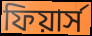
ফিয়ার্স